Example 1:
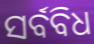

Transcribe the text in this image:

ସର୍ବବିଧ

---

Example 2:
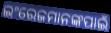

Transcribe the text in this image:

ଇଂରେଜମାନଙ୍କପାଇଁ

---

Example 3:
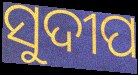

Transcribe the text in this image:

ସୁଦୀପ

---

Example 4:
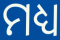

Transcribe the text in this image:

ମଧ୍ୟ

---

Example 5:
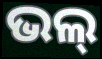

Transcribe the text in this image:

ଭଲ୍